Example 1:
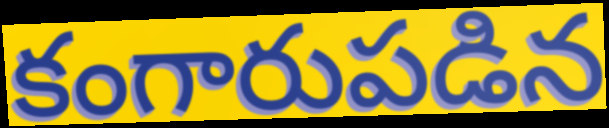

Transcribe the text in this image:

కంగారుపడిన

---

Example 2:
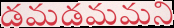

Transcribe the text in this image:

డమడమమని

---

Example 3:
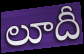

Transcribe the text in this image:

లూదీ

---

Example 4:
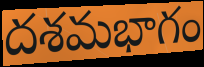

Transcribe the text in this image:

దశమభాగం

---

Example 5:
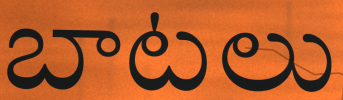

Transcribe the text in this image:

బాటలు